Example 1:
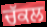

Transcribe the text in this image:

ਚੱਕਲ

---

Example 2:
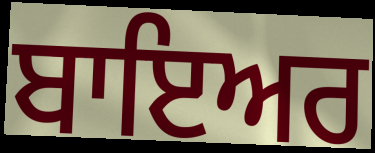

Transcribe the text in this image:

ਬਾਇਅਰ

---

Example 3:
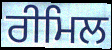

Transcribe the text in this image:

ਰੀਮਿਲ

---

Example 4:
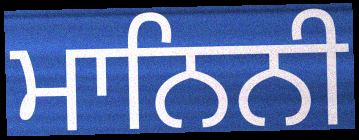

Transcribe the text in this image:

ਮਾਨਿਨੀ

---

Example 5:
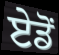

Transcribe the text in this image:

ਏਡੋਂ